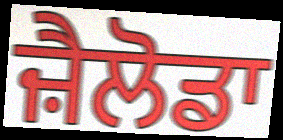
ਜ਼ੈਲੋਡਾ